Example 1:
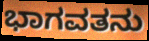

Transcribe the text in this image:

ಭಾಗವತನು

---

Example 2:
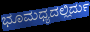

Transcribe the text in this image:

ಭೂಮಧ್ಯದಲ್ಲಿರ್ದು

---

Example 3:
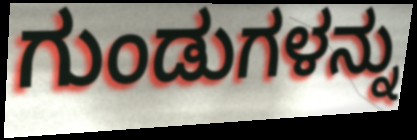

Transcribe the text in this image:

ಗುಂಡುಗಳನ್ನು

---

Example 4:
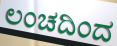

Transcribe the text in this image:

ಲಂಚದಿಂದ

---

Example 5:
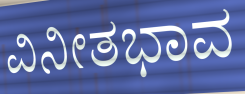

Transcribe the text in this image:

ವಿನೀತಭಾವ